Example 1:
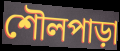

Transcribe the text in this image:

শৌলপাড়া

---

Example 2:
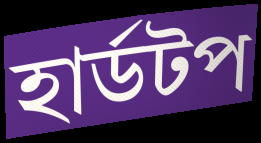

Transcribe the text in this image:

হার্ডটপ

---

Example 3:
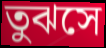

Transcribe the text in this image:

তুঝসে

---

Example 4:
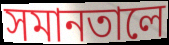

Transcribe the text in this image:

সমানতালে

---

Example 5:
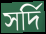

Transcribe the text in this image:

সর্দি